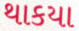
થાકયા